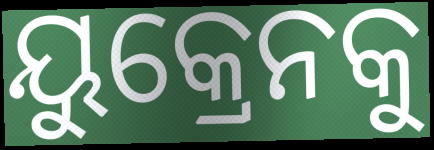
ୟୁକ୍ରେନକୁ